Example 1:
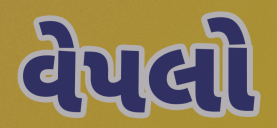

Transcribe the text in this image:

વેપલો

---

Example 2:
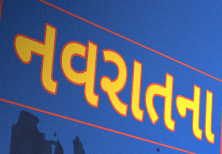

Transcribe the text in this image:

નવરાતના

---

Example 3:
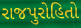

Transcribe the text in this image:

રાજપુરોહિતો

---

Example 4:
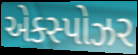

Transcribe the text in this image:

એક્સ્પોઝર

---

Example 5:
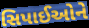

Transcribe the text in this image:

સિપાઈઓને